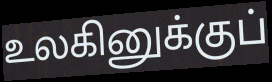
உலகினுக்குப்